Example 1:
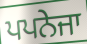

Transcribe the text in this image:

ਪਪਨੇਜਾ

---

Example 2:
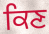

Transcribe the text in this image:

ਕਿਣ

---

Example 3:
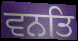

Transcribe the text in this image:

ਵਨਤਿ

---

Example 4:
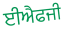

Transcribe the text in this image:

ਈਐਫਜੀ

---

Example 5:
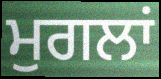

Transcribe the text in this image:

ਮੁਗਲਾਂ